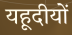
यहूदीयों